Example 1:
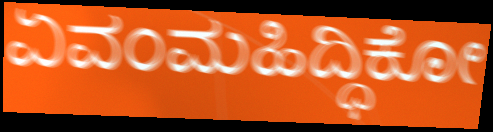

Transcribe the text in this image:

ಏವಂಮಹಿದ್ಧಿಕೋ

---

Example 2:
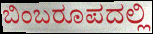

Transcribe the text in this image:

ಬಿಂಬರೂಪದಲ್ಲಿ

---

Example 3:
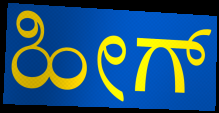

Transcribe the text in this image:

ಹೀಗ್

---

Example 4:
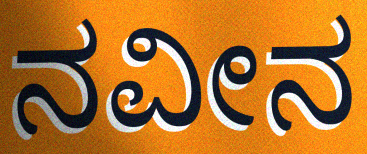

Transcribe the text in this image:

ನವೀನ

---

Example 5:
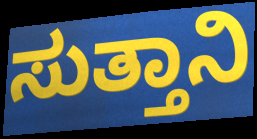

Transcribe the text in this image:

ಸುತ್ತಾನಿ